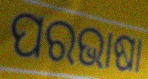
ପରଭାଷା